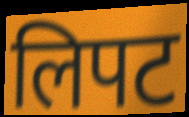
लिपट